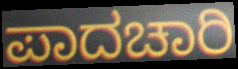
ಪಾದಚಾರಿ